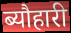
ब्यौहारी